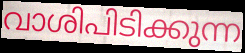
വാശിപിടിക്കുന്ന